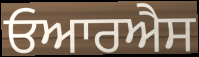
ਓਆਰਐਸ